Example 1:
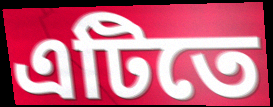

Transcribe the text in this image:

এটিতে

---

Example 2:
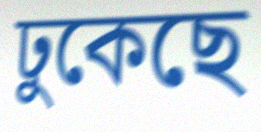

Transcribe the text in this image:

ঢুকেছে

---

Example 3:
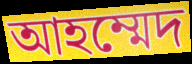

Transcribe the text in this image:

আহম্মেদ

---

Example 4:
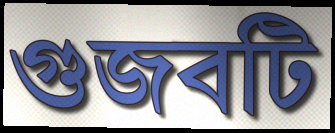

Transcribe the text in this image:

গুজবটি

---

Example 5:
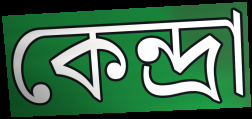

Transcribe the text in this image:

কেন্দ্রা